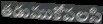
తడుముకోవలసి